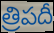
త్రిపదీ